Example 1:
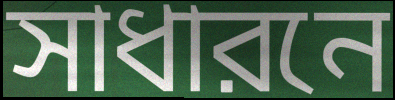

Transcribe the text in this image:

সাধারনে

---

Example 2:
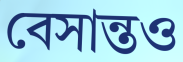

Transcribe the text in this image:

বেসান্তও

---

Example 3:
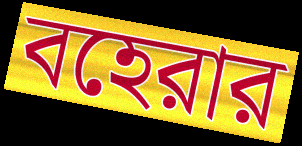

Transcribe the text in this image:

বহেরার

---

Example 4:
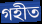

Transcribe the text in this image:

গহীত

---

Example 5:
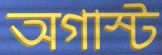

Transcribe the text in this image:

অগাস্ট